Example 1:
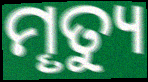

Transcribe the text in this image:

ମୄତ୍ୟୁ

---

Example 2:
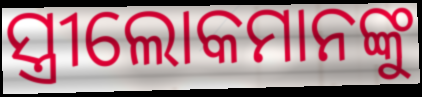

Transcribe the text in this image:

ସ୍ତ୍ରୀଲୋକମାନଙ୍କୁ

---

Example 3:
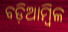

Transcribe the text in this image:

ବଡ଼ିଆମ୍ବିଳ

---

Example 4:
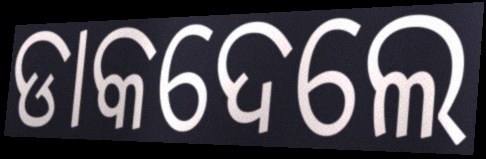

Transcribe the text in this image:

ଡାକଦେଲେ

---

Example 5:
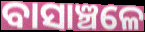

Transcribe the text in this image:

ବାସାଞ୍ଚଳେ